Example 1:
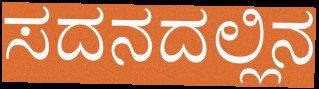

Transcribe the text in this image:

ಸದನದಲ್ಲಿನ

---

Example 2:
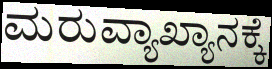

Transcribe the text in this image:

ಮರುವ್ಯಾಖ್ಯಾನಕ್ಕೆ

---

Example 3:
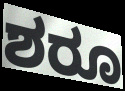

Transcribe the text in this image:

ಶರೂ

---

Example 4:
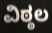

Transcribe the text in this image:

ವಿಠ್ಠಲ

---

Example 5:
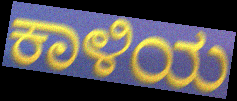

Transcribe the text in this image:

ಕಾಳಿಯ